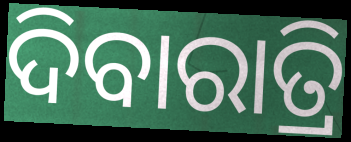
ଦିବାରାତ୍ରି